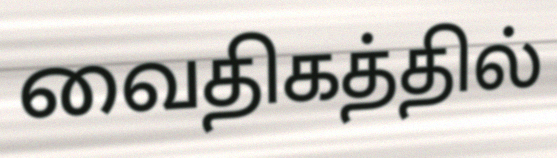
வைதிகத்தில்